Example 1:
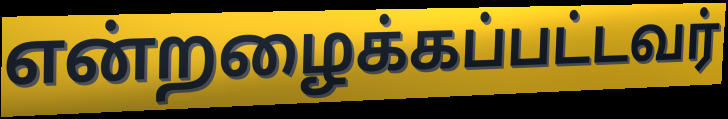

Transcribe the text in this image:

என்றழைக்கப்பட்டவர்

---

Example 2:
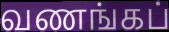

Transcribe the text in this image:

வணங்கப்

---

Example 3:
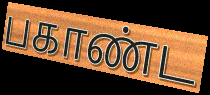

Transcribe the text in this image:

பகாண்ட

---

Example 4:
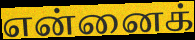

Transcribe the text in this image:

என்னைக்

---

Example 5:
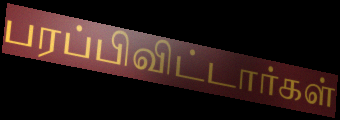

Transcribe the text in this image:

பரப்பிவிட்டார்கள்